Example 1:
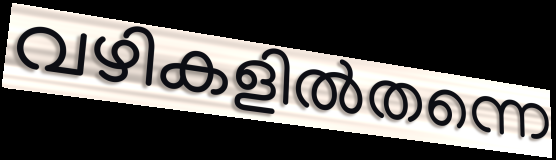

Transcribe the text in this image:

വഴികളിൽതന്നെ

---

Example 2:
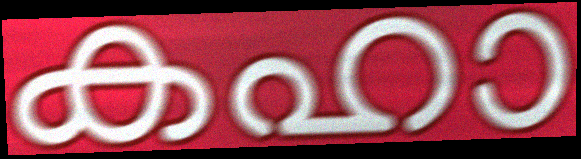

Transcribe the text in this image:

കഹാ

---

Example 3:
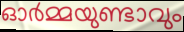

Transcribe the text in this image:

ഓർമ്മയുണ്ടാവും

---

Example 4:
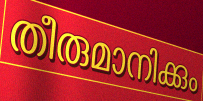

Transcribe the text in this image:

തീരുമാനിക്കും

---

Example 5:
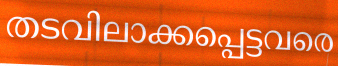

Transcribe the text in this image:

തടവിലാക്കപ്പെട്ടവരെ